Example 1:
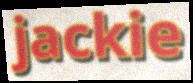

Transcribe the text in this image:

jackie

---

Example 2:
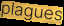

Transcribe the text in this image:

plagues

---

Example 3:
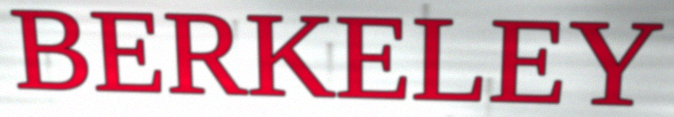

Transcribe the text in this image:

BERKELEY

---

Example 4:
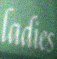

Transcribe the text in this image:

ladies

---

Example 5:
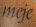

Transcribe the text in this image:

meje